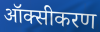
ऑक्सीकरण